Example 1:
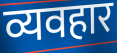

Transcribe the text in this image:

व्यवहार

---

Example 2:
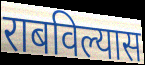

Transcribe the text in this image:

राबविल्यास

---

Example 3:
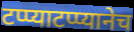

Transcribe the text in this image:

टप्प्याटप्प्यानेच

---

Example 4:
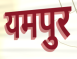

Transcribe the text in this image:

यमपुर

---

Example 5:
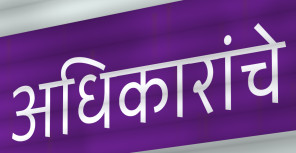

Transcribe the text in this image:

अधिकारांचे